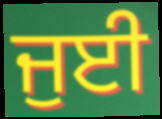
ਜੁਈ